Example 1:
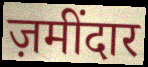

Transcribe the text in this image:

ज़मींदार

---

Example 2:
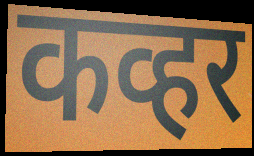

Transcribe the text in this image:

कव्हर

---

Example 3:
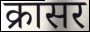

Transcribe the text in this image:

क्रासर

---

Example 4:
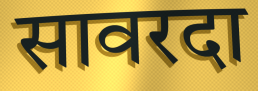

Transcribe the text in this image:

सावरदा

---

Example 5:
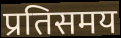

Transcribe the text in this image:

प्रतिसमय